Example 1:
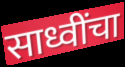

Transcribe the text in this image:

साध्वींचा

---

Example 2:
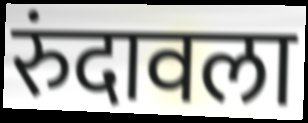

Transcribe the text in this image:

रुंदावला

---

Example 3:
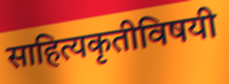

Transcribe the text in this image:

साहित्यकृतीविषयी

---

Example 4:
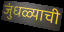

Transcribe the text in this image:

जुंधळ्याची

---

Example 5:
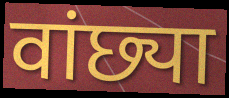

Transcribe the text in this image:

वांछ्या